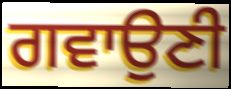
ਗਵਾਉਣੀ